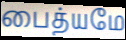
பைத்யமே